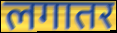
लगातर